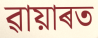
ৱায়াৰত